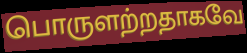
பொருளற்றதாகவே